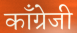
काँग्रेजी